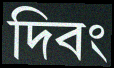
দিবং